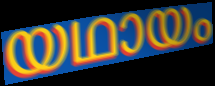
യഥായം